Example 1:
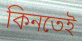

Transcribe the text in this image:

কিনতেই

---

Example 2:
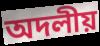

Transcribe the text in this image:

অদলীয়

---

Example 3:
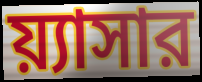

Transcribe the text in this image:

য়্যাসার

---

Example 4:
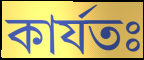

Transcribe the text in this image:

কার্যতঃ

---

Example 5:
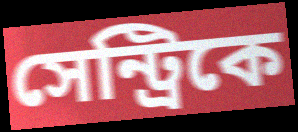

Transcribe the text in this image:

সেন্ট্রিকে